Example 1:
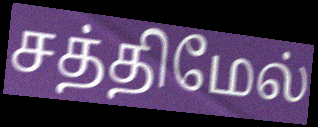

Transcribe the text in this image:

சத்திமேல்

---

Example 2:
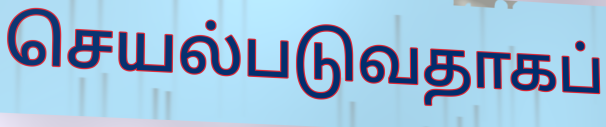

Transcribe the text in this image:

செயல்படுவதாகப்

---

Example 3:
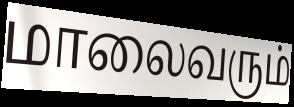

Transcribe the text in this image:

மாலைவரும்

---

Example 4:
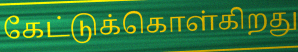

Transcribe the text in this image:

கேட்டுக்கொள்கிறது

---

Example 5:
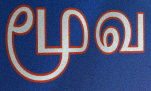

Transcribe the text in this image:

மூவ